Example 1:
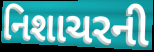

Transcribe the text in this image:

નિશાચરની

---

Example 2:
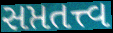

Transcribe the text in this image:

સપ્તતત્ત્વ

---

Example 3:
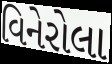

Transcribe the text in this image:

વિનેરોલા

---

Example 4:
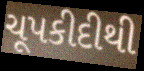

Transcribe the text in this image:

ચૂપકીદીથી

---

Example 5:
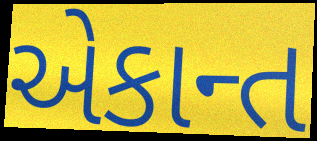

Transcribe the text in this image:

એકાન્ત